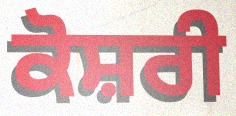
ਕੋਸ਼ਰੀ